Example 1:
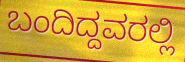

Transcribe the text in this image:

ಬಂದಿದ್ದವರಲ್ಲಿ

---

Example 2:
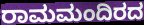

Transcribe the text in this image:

ರಾಮಮಂದಿರದ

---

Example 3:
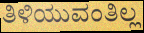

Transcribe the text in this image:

ತಿಳಿಯುವಂತಿಲ್ಲ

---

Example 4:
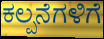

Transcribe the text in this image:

ಕಲ್ಪನೆಗಳಿಗೆ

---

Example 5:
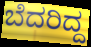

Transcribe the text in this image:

ಬೆದರಿದ್ದ